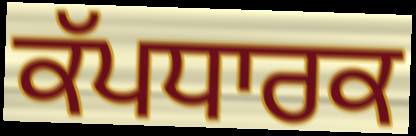
ਕੱਪਧਾਰਕ